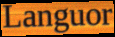
Languor